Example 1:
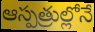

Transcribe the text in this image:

ఆస్పత్రుల్లోనే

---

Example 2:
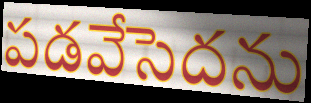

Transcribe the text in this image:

పడవేసెదను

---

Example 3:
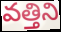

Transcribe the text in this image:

వత్తిని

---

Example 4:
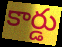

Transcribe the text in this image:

కార్డు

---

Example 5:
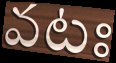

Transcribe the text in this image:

వటః